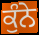
ਕੁੰਨੇ